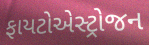
ફાયટોએસ્ટ્રોજન